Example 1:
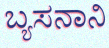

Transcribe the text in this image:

ಬ್ಯಸನಾನಿ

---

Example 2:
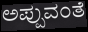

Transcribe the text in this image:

ಅಪ್ಪುವಂತೆ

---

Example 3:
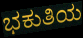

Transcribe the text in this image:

ಭಕುತಿಯ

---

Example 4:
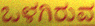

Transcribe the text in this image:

ಒಳಗಿರುವ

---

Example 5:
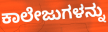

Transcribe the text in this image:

ಕಾಲೇಜುಗಳನ್ನು